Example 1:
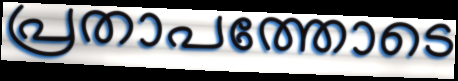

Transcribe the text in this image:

പ്രതാപത്തോടെ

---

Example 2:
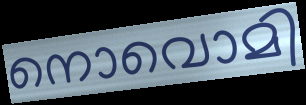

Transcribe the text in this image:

നൊവൊമി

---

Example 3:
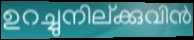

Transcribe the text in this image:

ഉറച്ചുനില്ക്കുവിൻ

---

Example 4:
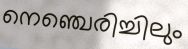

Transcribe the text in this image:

നെഞ്ചെരിച്ചിലും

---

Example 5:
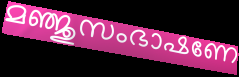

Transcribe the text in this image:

മഞ്ജുസംഭാഷണേ